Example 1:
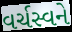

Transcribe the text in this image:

વર્ચસ્વને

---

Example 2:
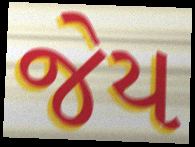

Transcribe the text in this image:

જેય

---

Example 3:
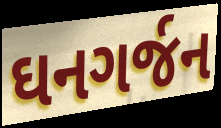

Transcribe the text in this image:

ઘનગર્જન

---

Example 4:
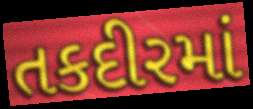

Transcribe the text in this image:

તકદીરમાં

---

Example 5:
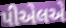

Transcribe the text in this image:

પીએલએ